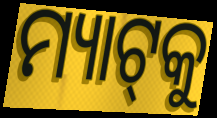
ମ୍ୟାଟ୍‌କୁ